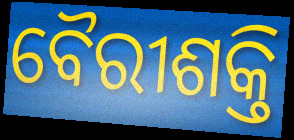
ବୈରୀଶକ୍ତି